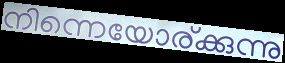
നിന്നെയോര്ക്കുന്നു